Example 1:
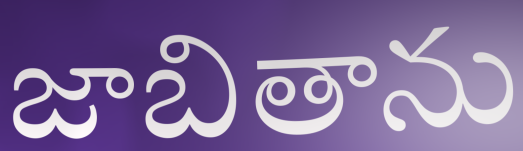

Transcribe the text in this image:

జాబితాను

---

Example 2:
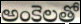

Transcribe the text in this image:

అంకెలతో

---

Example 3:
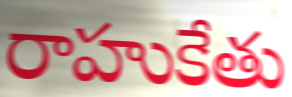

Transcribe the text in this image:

రాహుకేతు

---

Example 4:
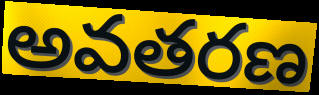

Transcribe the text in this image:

అవతరణ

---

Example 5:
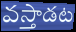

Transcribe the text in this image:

వస్తాడట